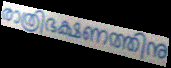
രാത്രിഭക്ഷണത്തിനു